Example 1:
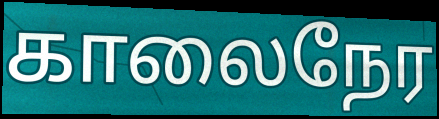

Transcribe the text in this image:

காலைநேர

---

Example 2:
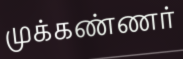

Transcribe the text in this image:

முக்கண்ணர்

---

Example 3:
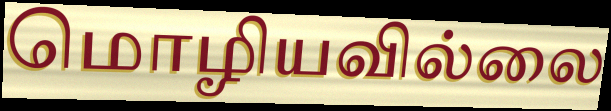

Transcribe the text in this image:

மொழியவில்லை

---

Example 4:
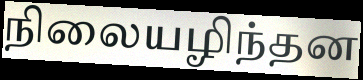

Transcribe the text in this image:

நிலையழிந்தன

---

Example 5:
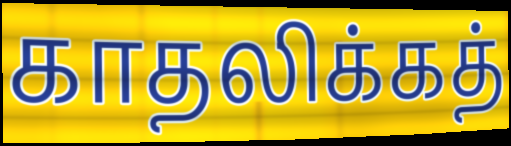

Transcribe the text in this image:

காதலிக்கத்